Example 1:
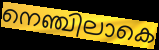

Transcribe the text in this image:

നെഞ്ചിലാകെ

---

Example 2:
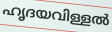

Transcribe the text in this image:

ഹൃദയവിള്ളൽ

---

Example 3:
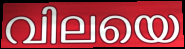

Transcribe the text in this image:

വിലയെ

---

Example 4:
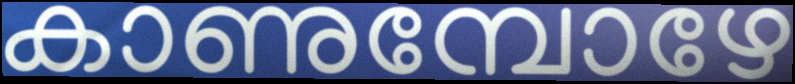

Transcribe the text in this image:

കാണുമ്പോഴേ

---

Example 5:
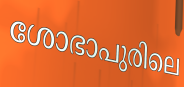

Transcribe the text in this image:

ശോഭാപുരിലെ